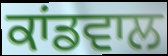
ਕਾਂਡਵਾਲ